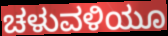
ಚಳುವಳಿಯೂ